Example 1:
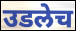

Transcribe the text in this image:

उडलेच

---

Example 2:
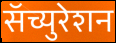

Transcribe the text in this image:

सॅच्युरेशन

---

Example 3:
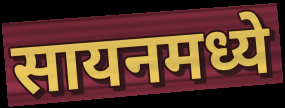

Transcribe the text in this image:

सायनमध्ये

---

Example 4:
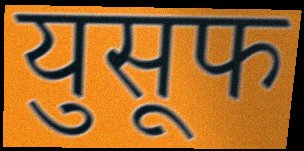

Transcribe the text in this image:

युसूफ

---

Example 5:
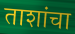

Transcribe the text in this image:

ताशांचा